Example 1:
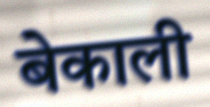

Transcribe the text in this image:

बेकाली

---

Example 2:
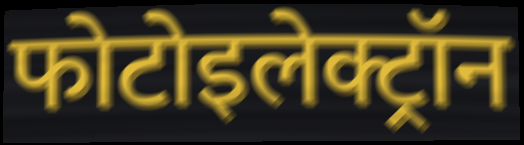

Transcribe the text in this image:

फोटोइलेक्ट्रॉन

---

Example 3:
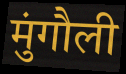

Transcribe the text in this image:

मुंगौली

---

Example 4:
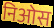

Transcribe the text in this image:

निओस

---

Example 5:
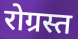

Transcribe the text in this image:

रोग्रस्त